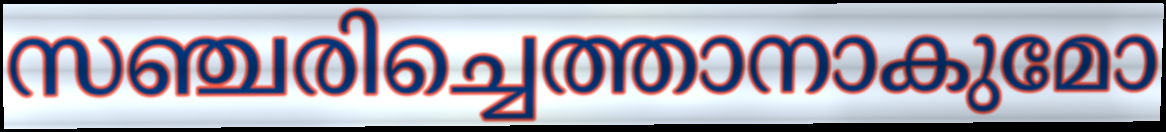
സഞ്ചരിച്ചെത്താനാകുമോ